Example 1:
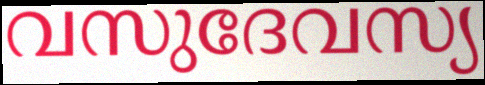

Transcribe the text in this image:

വസുദേവസ്യ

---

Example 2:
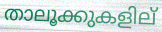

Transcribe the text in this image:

താലൂക്കുകളില്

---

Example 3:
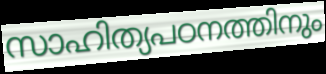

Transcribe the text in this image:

സാഹിത്യപഠനത്തിനും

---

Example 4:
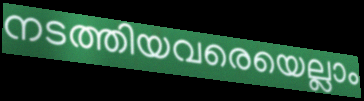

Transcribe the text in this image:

നടത്തിയവരെയെല്ലാം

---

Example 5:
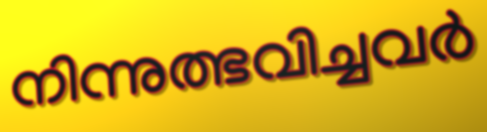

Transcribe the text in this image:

നിന്നുത്ഭവിച്ചവർ